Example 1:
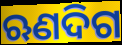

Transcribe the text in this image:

ଋଣଦିଗ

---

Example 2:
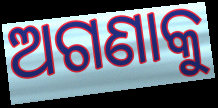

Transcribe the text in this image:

ଅଗଣାକୁ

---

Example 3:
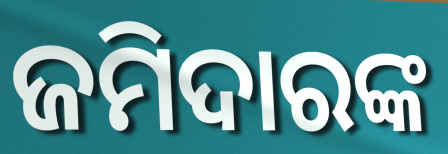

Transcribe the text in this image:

ଜମିଦାରଙ୍କ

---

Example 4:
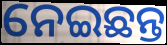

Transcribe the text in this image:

ନେଇଛନ୍ତ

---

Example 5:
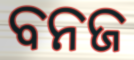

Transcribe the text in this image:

ବନଜ